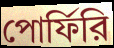
পোর্ফিরি